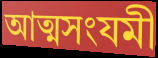
আত্মসংযমী